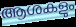
ആശകളും